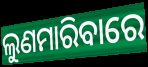
ଲୁଣମାରିବାରେ